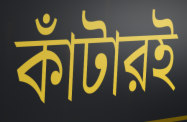
কাঁটারই